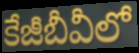
కేజీబీవీలో